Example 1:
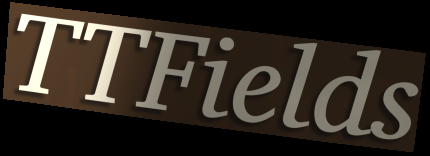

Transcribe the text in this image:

TTFields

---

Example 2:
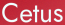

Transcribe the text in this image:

Cetus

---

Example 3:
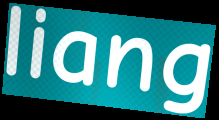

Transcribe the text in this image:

liang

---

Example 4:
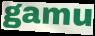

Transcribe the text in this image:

gamu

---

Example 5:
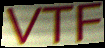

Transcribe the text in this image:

VTF